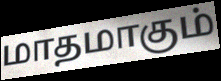
மாதமாகும்